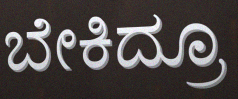
ಬೇಕಿದ್ರೂ